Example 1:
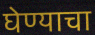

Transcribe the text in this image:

घेण्याचा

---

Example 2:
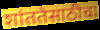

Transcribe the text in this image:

शांततेसाठीचा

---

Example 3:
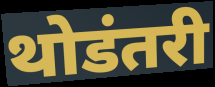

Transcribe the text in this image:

थोडंतरी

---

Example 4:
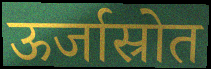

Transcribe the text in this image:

ऊर्जास्रोत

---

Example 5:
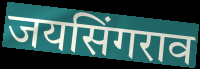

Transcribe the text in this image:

जयसिंगराव